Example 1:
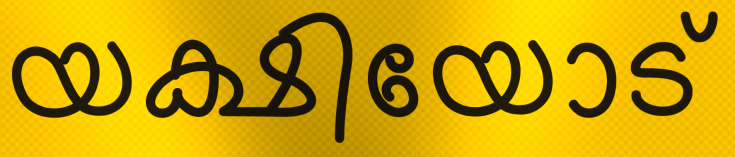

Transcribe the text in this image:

യക്ഷിയോട്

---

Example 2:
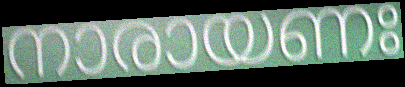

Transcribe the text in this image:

നാരായണഃ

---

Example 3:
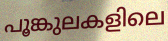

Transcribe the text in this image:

പൂങ്കുലകളിലെ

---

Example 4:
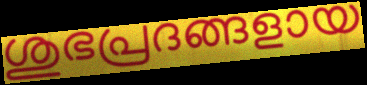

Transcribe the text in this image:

ശുഭപ്രദങ്ങളായ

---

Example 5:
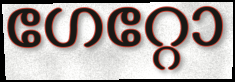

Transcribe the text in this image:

ഗേറ്റോ